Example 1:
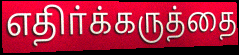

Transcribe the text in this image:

எதிர்க்கருத்தை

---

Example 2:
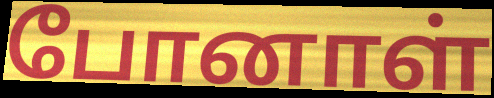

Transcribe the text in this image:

போனாள்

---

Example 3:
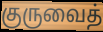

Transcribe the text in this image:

குருவைத்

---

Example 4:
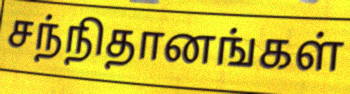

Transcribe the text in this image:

சந்நிதானங்கள்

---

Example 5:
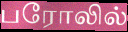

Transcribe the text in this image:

பரோலில்